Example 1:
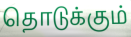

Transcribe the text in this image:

தொடுக்கும்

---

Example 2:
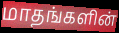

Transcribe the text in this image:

மாதங்களின்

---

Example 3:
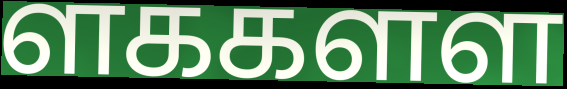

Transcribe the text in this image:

ளககளள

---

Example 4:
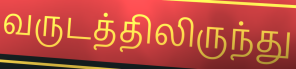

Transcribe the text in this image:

வருடத்திலிருந்து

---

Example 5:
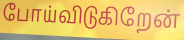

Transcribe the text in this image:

போய்விடுகிறேன்